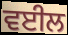
ਵਈਲ